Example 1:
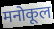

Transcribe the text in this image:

मनोकूल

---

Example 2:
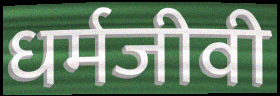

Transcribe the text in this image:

धर्मजीवी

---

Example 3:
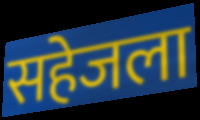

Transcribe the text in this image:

सहेजला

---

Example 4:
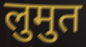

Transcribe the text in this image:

लुमुत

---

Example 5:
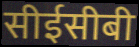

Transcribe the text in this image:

सीईसीबी